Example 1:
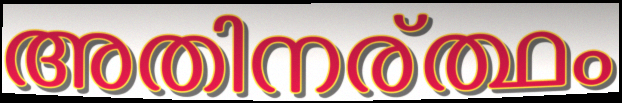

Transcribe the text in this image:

അതിനര്ത്ഥം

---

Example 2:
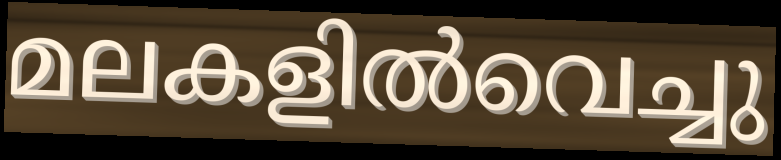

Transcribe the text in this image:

മലകളിൽവെച്ചു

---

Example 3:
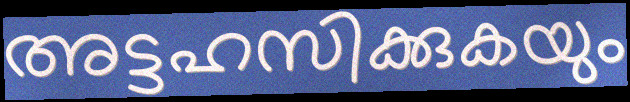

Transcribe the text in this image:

അട്ടഹസിക്കുകയും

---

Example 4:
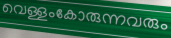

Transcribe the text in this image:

വെള്ളംകോരുന്നവരും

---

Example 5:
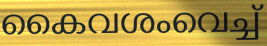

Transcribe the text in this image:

കൈവശംവെച്ച്